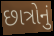
છાત્રોનું